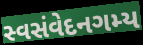
સ્વસંવેદનગમ્ય